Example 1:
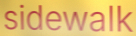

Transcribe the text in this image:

sidewalk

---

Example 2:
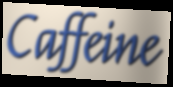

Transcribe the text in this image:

Caffeine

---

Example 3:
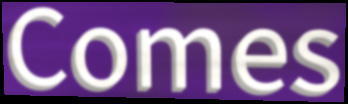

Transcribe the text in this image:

Comes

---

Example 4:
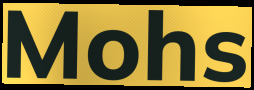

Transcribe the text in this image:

Mohs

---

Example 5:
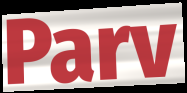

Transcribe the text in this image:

Parv